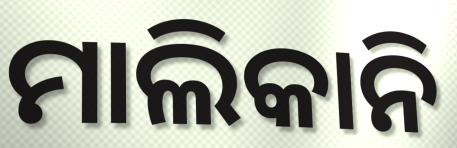
ମାଲିକାନି